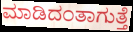
ಮಾಡಿದಂತಾಗುತ್ತೆ